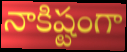
నాకిష్టంగా